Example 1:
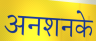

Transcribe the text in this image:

अनशनके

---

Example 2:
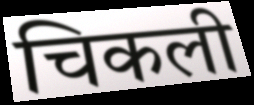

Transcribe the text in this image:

चिकली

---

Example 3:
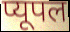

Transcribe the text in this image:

प्यूपल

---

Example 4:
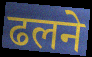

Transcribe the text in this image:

ढलने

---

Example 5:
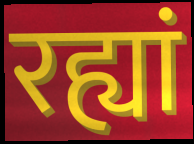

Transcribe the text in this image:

रह्यां